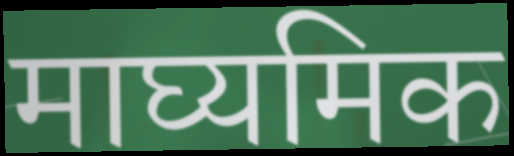
माघ्यमिक